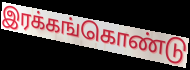
இரக்கங்கொண்டு